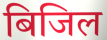
बिजिल